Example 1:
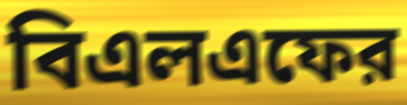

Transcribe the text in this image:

বিএলএফের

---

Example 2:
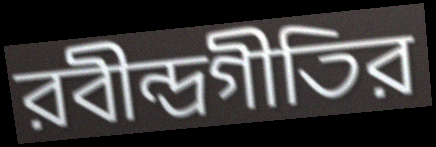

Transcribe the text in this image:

রবীন্দ্রগীতির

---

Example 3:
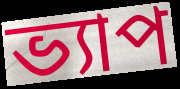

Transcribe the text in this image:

ভ্যাপ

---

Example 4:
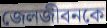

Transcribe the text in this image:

জেলজীবনকে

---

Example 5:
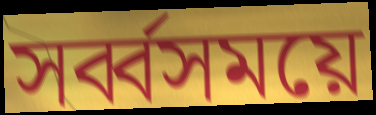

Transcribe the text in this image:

সর্ব্বসময়ে